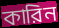
কারিন